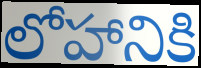
లోహానికి